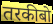
तरकीबो